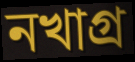
নখাগ্র